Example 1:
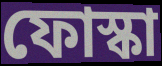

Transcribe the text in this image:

ফোস্কা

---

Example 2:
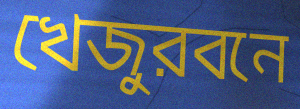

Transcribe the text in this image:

খেজুরবনে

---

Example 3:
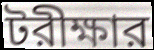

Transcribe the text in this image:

টরীক্ষার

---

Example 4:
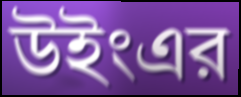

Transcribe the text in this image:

উইংএর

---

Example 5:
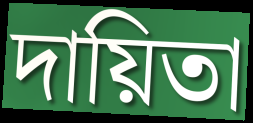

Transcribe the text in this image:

দায়িতা